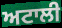
ਅਟਾਲੀ